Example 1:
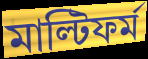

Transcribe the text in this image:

মাল্টিফর্ম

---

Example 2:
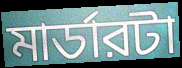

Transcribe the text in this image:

মার্ডারটা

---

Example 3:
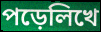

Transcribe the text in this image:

পড়েলিখে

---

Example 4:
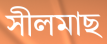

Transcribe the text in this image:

সীলমাছ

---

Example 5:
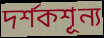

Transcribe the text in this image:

দর্শকশূন্য